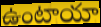
ఉంటాయా